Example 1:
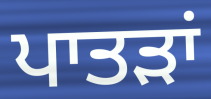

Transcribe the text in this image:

ਪਾਤੜਾਂ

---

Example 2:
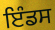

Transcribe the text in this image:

ਇੰਡਸ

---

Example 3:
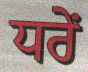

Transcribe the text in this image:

ਧਰੇਂ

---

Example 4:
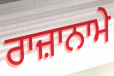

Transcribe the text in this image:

ਰਾਜ਼ਾਨਾਮੇ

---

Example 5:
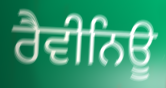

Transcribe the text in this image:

ਰੈਵੀਨਿਊ